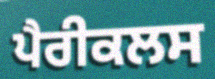
ਪੈਰੀਕਲਸ